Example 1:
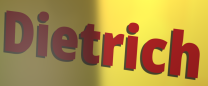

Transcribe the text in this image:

Dietrich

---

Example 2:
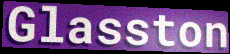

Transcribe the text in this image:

Glasston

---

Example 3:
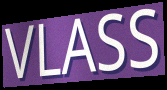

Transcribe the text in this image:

VLASS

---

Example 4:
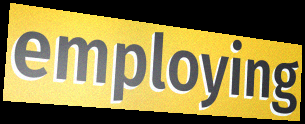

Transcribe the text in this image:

employing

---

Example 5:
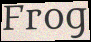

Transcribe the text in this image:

Frog